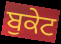
ਬੁਕੇਟ